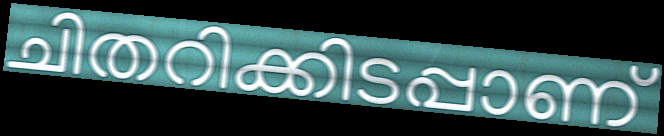
ചിതറിക്കിടപ്പാണ്